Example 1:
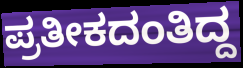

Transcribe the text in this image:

ಪ್ರತೀಕದಂತಿದ್ದ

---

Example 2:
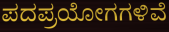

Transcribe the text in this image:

ಪದಪ್ರಯೋಗಗಳಿವೆ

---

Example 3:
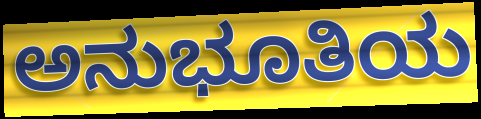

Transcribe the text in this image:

ಅನುಭೂತಿಯ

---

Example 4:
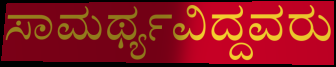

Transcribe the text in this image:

ಸಾಮರ್ಥ್ಯವಿದ್ದವರು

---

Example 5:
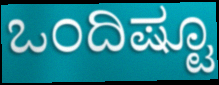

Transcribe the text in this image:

ಒಂದಿಷ್ಟೂ